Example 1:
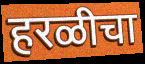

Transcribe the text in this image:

हरळीचा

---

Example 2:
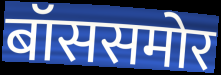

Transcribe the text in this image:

बॉससमोर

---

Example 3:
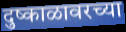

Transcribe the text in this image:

दुष्काळावरच्या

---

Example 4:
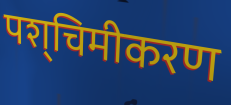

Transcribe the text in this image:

पश्चिमीकरण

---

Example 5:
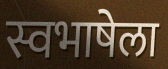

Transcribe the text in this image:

स्वभाषेला